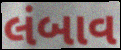
લંબાવ